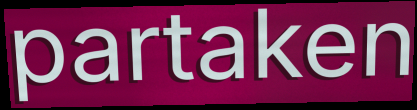
partaken